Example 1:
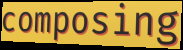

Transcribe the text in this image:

composing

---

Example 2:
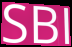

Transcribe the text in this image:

SBI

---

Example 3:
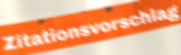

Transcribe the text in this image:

Zitationsvorschlag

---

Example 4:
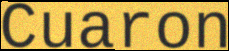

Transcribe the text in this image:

Cuaron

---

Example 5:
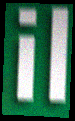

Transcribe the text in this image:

il